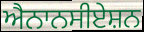
ਐਨਾਨਸੀਏਸ਼ਨ